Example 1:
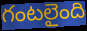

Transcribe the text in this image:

గంటలైంది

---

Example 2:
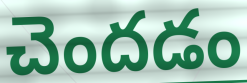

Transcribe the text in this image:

చెందడం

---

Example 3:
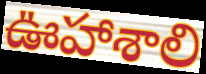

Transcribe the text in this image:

ఊహాశాలి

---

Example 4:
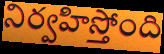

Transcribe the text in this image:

నిర్వహిస్తోంది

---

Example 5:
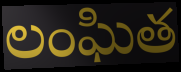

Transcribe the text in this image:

లంఘిత